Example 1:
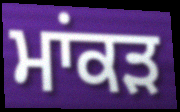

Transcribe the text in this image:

ਮਾਂਕੜ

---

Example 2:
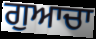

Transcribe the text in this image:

ਗੁਆਚਾ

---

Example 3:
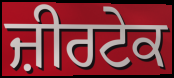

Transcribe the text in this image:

ਜ਼ੀਰਟੇਕ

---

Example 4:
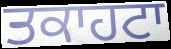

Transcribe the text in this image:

ਤਕਾਹਟਾ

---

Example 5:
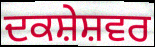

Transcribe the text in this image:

ਦਕਸ਼ੇਸ਼ਵਰ